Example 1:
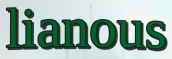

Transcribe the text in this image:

lianous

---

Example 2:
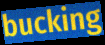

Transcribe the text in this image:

bucking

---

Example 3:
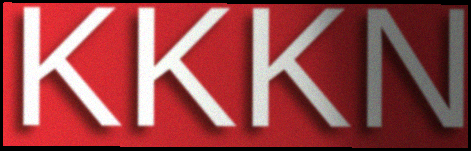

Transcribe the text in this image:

KKKN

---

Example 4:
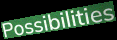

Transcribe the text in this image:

Possibilities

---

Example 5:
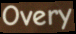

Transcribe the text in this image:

Overy